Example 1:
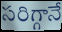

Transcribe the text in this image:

సరిగ్గానే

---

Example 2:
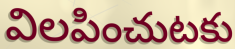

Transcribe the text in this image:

విలపించుటకు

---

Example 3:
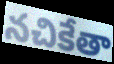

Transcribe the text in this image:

నచికేతా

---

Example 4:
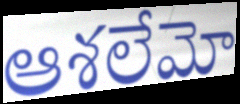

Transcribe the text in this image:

ఆశలేమో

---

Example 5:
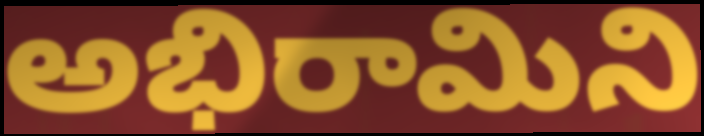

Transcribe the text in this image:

అభిరామిని